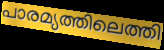
പാരമ്യത്തിലെത്തി